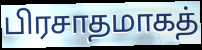
பிரசாதமாகத்